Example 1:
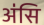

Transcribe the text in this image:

अ॑सि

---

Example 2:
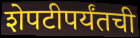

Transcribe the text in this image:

शेपटीपर्यंतची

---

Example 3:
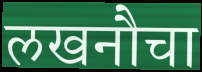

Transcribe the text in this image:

लखनौचा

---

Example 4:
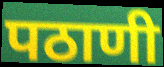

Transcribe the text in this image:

पठाणी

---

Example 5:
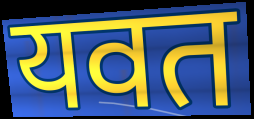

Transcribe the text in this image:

यवत